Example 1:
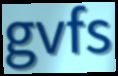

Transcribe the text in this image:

gvfs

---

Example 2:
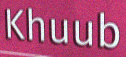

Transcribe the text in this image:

Khuub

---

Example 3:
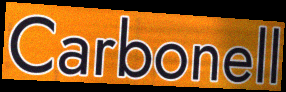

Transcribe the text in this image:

Carbonell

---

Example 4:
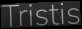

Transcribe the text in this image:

Tristis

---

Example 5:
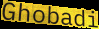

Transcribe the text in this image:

Ghobadi